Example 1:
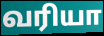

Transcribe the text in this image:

வரியா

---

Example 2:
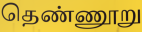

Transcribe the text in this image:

தெண்ணூறு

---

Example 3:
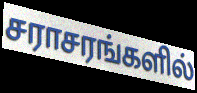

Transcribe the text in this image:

சராசரங்களில்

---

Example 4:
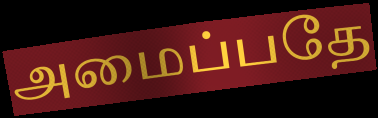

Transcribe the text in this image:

அமைப்பதே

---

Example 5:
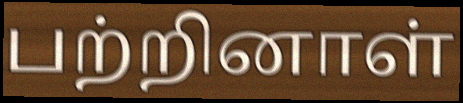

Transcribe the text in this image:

பற்றினாள்